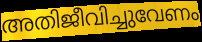
അതിജീവിച്ചുവേണം